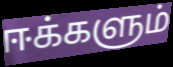
ஈக்களும்